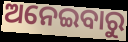
ଅନେଇବାରୁ